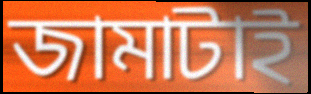
জামাটাই